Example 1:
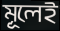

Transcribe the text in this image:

মূলেই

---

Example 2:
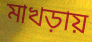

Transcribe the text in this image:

মাখড়ায়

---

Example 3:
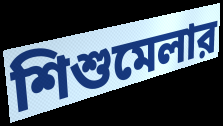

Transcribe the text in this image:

শিশুমেলার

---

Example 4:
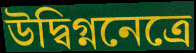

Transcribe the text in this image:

উদ্বিগ্ননেত্রে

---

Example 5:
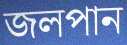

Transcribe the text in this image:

জলপান